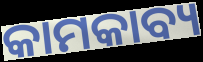
କାମକାବ୍ୟ